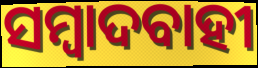
ସମ୍ବାଦବାହୀ